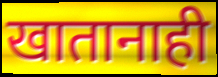
खातानाही